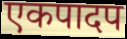
एकपादप